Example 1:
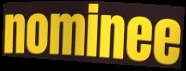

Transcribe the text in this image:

nominee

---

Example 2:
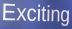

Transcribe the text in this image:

Exciting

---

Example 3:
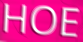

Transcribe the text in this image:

HOE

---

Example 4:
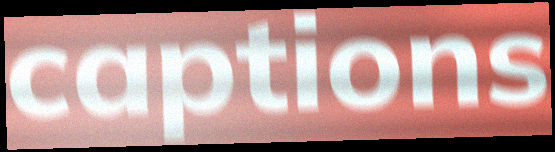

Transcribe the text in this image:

captions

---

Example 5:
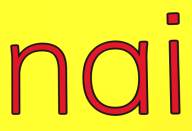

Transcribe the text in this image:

nai